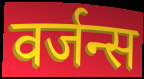
वर्जन्स